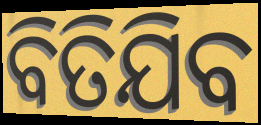
ବିତିଯିବ